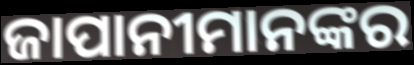
ଜାପାନୀମାନଙ୍କର